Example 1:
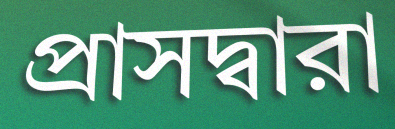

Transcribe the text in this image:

প্রাসদ্বারা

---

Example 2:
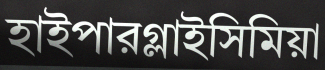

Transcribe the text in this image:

হাইপারগ্লাইসিমিয়া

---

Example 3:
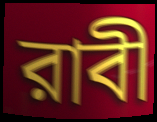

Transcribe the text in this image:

রাবী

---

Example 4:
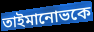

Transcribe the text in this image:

তাইমানোভকে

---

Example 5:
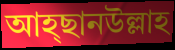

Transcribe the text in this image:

আহ্ছানউল্লাহ